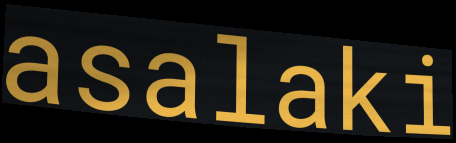
asalaki